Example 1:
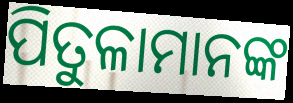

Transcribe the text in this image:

ପିତୁଳାମାନଙ୍କ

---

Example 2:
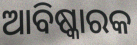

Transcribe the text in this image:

ଆବିଷ୍କାରକ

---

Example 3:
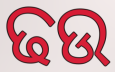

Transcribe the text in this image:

ଢଉ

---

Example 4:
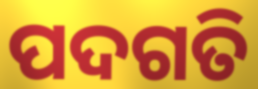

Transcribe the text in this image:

ପଦଗତି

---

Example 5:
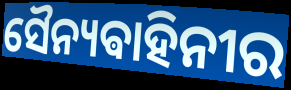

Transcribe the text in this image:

ସୈନ୍ୟଵାହିନୀର